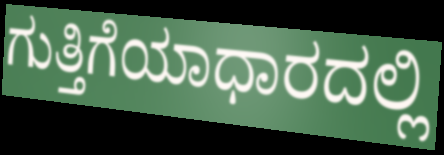
ಗುತ್ತಿಗೆಯಾಧಾರದಲ್ಲಿ